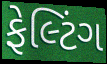
ફેલ્ટિંગ